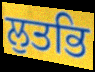
ਲੁਤਭਿ